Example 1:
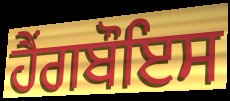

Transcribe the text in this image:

ਹੈਂਗਬੌਇਸ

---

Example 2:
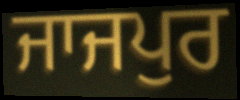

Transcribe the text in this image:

ਜਾਜਪੁਰ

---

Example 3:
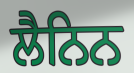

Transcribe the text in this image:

ਲੈਨਿਨ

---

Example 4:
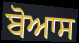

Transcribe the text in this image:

ਬੋਆਸ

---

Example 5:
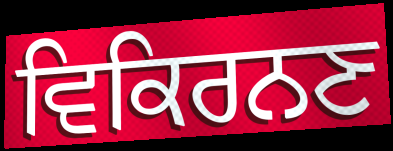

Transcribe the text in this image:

ਵਿਕਿਰਨਣ